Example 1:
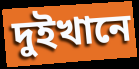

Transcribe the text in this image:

দুইখানে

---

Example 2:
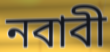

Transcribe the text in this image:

নবাবী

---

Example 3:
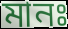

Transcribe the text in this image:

মানঃ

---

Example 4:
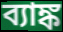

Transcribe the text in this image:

ব্যাঙ্ক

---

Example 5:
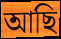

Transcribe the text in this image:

আছি